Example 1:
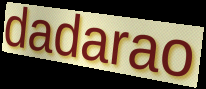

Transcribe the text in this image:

dadarao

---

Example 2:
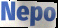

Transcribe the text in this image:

Nepo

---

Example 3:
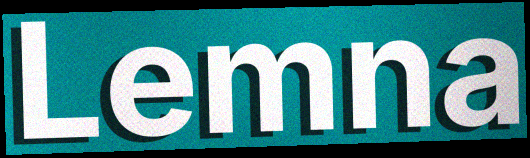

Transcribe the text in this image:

Lemna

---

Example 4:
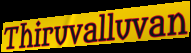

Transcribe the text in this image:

Thiruvalluvan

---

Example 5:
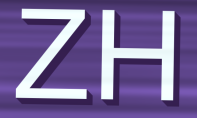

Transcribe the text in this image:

ZH